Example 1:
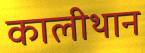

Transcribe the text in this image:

कालीथान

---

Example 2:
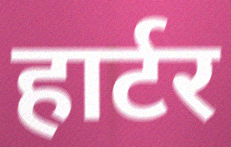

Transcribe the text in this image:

हार्टर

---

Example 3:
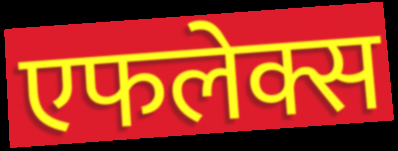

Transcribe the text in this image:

एफलेक्स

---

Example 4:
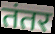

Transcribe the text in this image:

तंतर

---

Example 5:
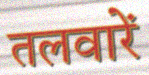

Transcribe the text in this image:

तलवारें